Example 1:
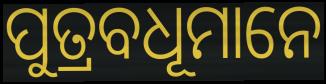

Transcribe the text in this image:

ପୁତ୍ରବଧୂମାନେ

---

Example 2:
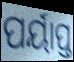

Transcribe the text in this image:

ପର୍ୟାପ୍ତ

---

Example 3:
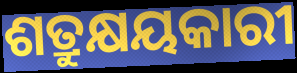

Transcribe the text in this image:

ଶତ୍ରୁକ୍ଷୟକାରୀ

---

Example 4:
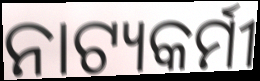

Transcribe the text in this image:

ନାଟ୍ୟକର୍ମୀ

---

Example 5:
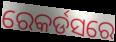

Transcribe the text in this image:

ରେକର୍ଡସରେ